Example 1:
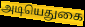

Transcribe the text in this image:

அடியெதுகை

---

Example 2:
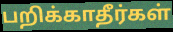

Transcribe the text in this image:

பறிக்காதீர்கள்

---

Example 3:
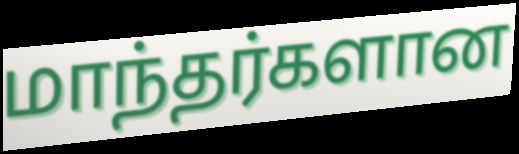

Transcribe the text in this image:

மாந்தர்களான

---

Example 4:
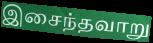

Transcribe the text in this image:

இசைந்தவாறு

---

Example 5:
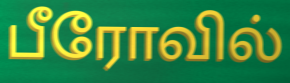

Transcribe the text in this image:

பீரோவில்